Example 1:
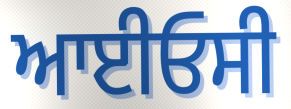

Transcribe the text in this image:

ਆਈਓਸੀ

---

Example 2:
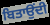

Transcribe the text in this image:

ਬਿਤਾਉਂਦੀ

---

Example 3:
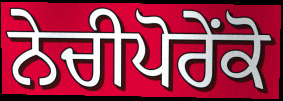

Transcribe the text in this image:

ਨੇਚੀਪੋਰੇਂਕੋ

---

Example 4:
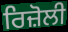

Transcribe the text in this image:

ਰਿਜ਼ੋਲੀ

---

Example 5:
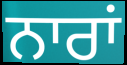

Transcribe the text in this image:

ਨਾਰਾਂ